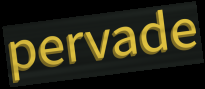
pervade